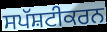
ਸਪੱਸ਼ਟੀਕਰਨ